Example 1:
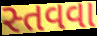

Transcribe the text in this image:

સ્તવવા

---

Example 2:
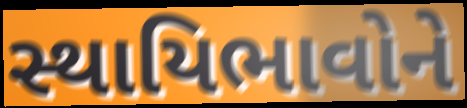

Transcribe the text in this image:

સ્થાયિભાવોને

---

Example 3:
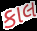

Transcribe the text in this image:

કાલ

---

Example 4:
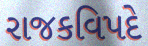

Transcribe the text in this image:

રાજકવિપદે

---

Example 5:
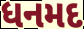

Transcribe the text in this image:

ધનમદ